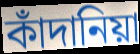
কাঁদানিয়া